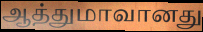
ஆத்துமாவானது